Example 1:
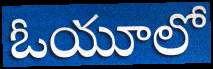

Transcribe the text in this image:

ఓయూలో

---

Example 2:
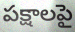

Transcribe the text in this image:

పక్షాలపై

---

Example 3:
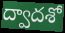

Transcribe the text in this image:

ద్వాదశో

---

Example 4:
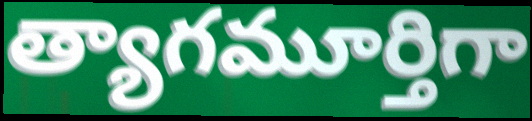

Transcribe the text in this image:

త్యాగమూర్తిగా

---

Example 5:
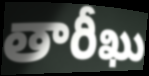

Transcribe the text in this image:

తారీఖు